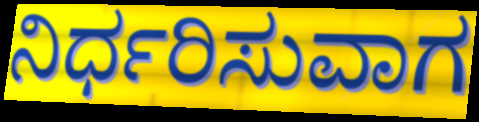
ನಿರ್ಧರಿಸುವಾಗ